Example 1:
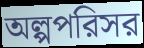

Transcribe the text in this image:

অল্পপরিসর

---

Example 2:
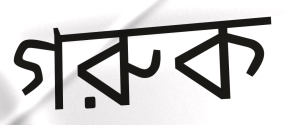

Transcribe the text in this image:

গরুক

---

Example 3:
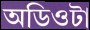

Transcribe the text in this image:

অডিওটা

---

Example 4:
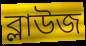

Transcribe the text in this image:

ব্লাউজ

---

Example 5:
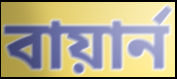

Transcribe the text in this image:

বায়ার্ন